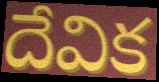
దేవిక